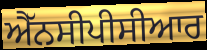
ਐੱਨਸੀਪੀਸੀਆਰ